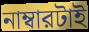
নাম্বারটাই